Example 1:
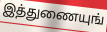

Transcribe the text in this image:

இத்துணையுங்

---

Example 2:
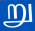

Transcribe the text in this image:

று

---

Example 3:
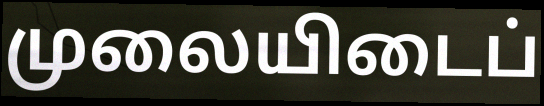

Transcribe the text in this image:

முலையிடைப்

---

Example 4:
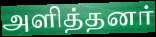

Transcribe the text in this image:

அளித்தனர்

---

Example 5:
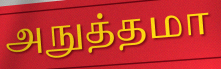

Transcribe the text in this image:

அநுத்தமா